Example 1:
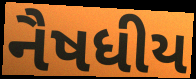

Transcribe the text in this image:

નૈષધીય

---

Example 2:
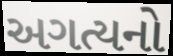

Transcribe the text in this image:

અગત્યનો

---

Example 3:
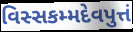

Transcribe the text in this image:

વિસ્સકમ્મદેવપુત્તં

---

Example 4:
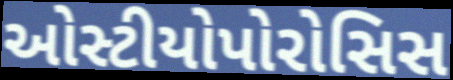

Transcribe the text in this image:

ઓસ્ટીયોપોરોસિસ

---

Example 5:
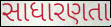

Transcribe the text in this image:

સાધારણતા